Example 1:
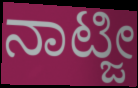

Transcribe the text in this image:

ನಾಟ್ಜೀ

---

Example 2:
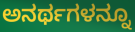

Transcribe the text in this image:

ಅನರ್ಥಗಳನ್ನೂ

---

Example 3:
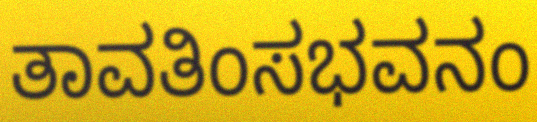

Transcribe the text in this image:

ತಾವತಿಂಸಭವನಂ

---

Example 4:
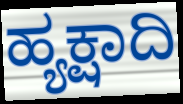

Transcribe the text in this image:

ಹ್ಯಕ್ಷಾದಿ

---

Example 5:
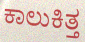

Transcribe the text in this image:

ಕಾಲುಕಿತ್ತ